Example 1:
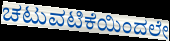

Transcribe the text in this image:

ಚಟುವಟಿಕೆಯಿಂದಲೇ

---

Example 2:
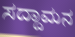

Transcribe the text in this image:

ಸದ್ದಾಮನ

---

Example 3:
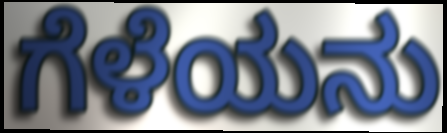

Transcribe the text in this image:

ಗೆಳೆಯನು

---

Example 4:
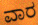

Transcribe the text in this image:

ವಾರ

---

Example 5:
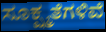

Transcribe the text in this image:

ಸೂಕ್ಷ್ಮತೆಗಳಿವೆ